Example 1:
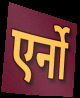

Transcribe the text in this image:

एर्नो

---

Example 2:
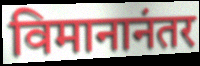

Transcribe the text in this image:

विमानानंतर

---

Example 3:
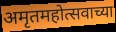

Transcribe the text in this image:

अमृतमहोत्सवाच्या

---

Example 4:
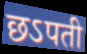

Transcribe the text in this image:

छऽपती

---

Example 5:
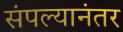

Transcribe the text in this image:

संपल्यानंतर